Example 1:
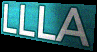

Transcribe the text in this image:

LLLA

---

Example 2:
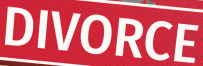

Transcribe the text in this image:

DIVORCE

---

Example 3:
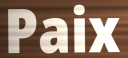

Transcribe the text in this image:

Paix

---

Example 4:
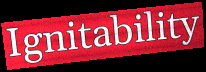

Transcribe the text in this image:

Ignitability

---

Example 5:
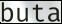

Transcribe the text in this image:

buta